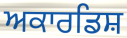
ਅਕਾਰਡਿਸ਼